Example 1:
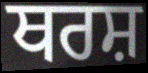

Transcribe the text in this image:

ਥਰਸ਼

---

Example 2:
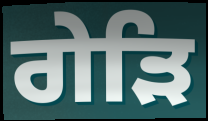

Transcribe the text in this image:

ਗੇੜਿ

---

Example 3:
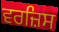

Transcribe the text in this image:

ਵਰਜ਼ਿਸ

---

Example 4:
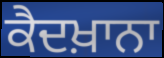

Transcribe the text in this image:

ਕੈਦਖ਼ਾਨਾ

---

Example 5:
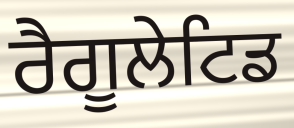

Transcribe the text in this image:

ਰੈਗੂਲੇਟਿਡ